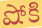
షోకి